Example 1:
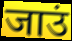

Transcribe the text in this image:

जाउं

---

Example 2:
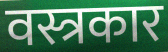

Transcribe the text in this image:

वस्त्रकार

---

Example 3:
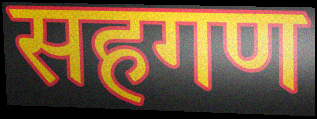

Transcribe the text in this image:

सहगण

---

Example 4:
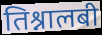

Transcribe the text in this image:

तिश्नालबी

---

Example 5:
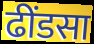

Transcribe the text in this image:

ढींडसा